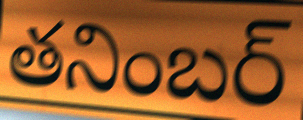
తనింబర్